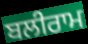
ਬਲੀਰਾਮ